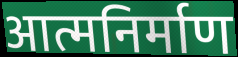
आत्मनिर्माण